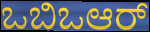
ಒಬಿಒಆರ್